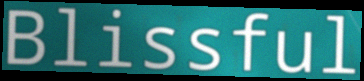
Blissful